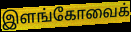
இளங்கோவைக்